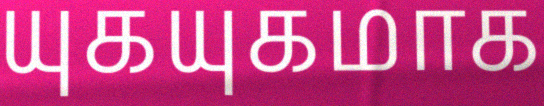
யுகயுகமாக